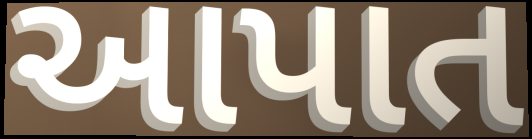
આપાત